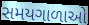
સમયગાળાઓ